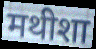
मथीशा